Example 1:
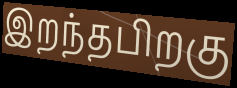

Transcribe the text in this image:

இறந்தபிறகு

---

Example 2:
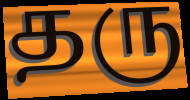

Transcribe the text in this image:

தரு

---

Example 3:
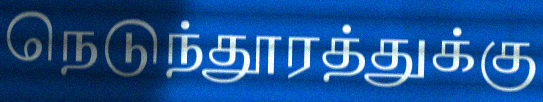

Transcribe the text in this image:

நெடுந்தூரத்துக்கு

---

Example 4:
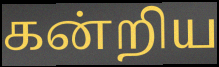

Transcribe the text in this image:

கன்றிய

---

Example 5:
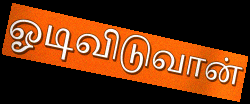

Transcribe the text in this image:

ஓடிவிடுவான்